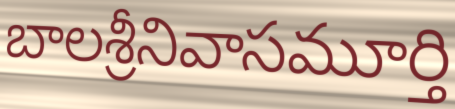
బాలశ్రీనివాసమూర్తి